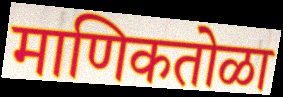
माणिकतोळा